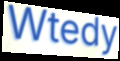
Wtedy